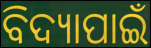
ବିଦ୍ୟାପାଇଁ